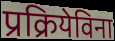
प्रक्रियेविना